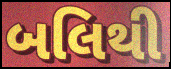
બલિથી